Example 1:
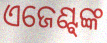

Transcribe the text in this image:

ଏଜେଣ୍ଟ୍‍ଙ୍କ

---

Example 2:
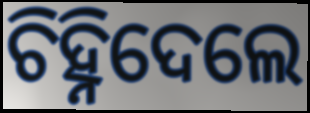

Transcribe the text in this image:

ଚିହ୍ନିଦେଲେ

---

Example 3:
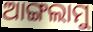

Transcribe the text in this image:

ଆଙ୍ଗଲାମୁ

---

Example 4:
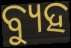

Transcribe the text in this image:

ବ୍ୟୁହ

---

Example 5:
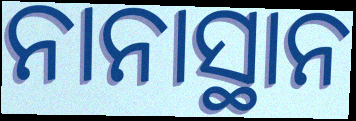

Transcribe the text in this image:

ନାନାସ୍ଥାନ